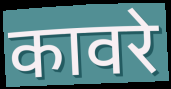
कावरे